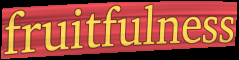
fruitfulness